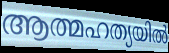
ആത്മഹത്യയിൽ